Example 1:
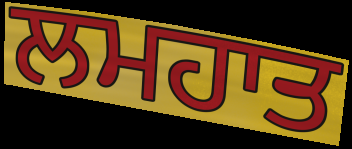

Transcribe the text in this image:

ਲਮਹਾਤ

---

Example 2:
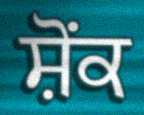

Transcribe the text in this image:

ਸ਼ੋਂਕ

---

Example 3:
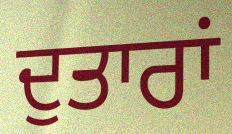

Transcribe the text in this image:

ਦੁਤਾਰਾਂ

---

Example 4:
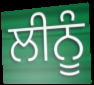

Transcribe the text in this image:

ਲੀਨੂੰ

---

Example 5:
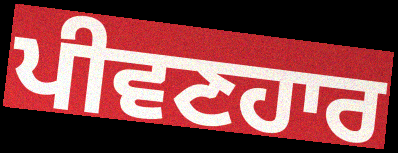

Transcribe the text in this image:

ਪੀਵਣਹਾਰ